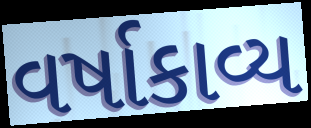
વર્ષાકાવ્ય